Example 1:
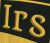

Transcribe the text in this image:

Irs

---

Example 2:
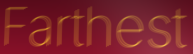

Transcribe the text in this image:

Farthest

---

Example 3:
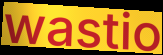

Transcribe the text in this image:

wastio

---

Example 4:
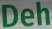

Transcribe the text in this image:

Deh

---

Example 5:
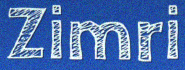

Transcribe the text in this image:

Zimri